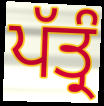
ਪੱਤ੍ਰੰ